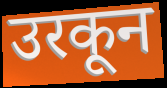
उरकून